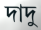
দাদু